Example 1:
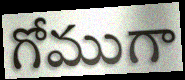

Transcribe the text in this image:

గోముగా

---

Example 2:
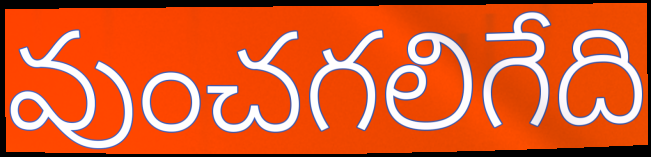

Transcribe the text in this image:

వుంచగలిగేది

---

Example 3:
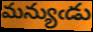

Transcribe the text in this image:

మన్యుఁడు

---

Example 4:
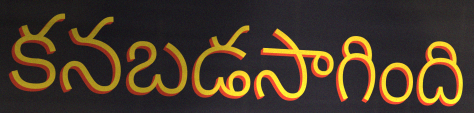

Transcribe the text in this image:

కనబడసాగింది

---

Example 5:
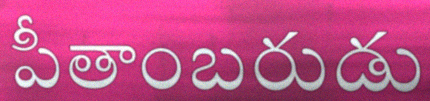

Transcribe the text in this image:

పీతాంబరుడు